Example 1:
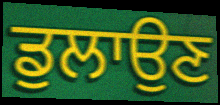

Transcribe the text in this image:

ਡੁਲਾਉਣ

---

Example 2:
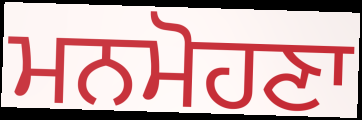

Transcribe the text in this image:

ਮਨਮੋਹਣਾ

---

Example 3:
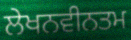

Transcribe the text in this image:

ਲੇਖਨਵੀਨਤਮ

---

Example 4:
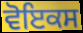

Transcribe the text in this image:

ਵੋਇਕਸ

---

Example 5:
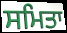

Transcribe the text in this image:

ਸਮਿਤਾ